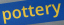
pottery